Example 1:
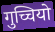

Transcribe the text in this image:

गुच्चियो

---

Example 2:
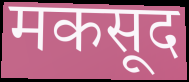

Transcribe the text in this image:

मकसूद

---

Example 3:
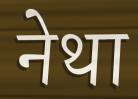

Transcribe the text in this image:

नेथा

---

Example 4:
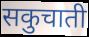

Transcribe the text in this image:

सकुचाती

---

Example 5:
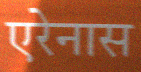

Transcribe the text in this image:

एरेनास